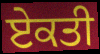
ਏਕਤੀ